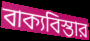
বাক্যবিস্তার